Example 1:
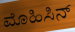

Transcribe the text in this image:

ಮೊಹಿಸಿನ್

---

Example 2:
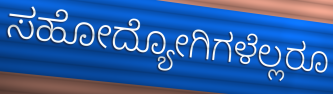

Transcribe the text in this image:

ಸಹೋದ್ಯೋಗಿಗಳೆಲ್ಲರೂ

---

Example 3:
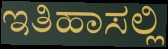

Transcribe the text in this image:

ಇತಿಹಾಸಲ್ಲಿ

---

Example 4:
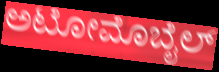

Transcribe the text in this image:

ಅಟೋಮೊಬೈಲ್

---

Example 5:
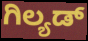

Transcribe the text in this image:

ಗಿಲ್ಯಡ್